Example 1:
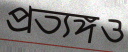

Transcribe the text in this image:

প্রত্যঙ্গও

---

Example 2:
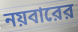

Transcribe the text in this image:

নয়বারের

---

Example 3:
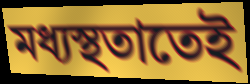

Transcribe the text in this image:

মধ্যস্থতাতেই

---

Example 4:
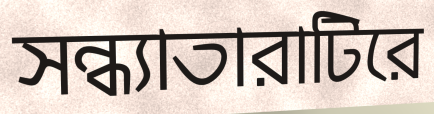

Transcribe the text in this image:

সন্ধ্যাতারাটিরে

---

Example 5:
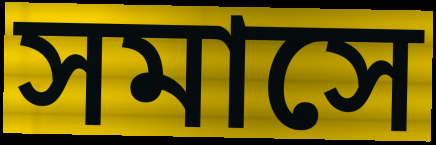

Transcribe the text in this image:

সমাসে